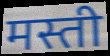
मस्ती